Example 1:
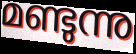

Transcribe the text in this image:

മണ്ടുന്നു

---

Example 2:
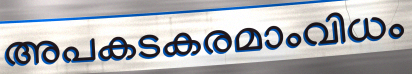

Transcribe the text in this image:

അപകടകരമാംവിധം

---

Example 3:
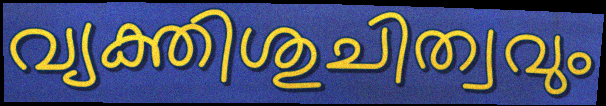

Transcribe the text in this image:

വ്യക്തിശുചിത്വവും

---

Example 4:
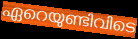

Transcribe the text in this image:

ഏറെയുണ്ടിവിടെ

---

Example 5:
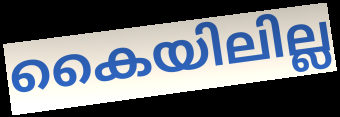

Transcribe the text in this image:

കൈയിലില്ല